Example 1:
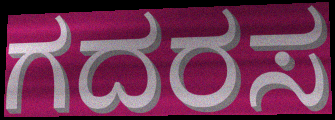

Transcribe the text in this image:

ಗದರಸ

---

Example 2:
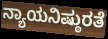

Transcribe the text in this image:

ನ್ಯಾಯನಿಷ್ಠುರತೆ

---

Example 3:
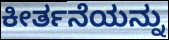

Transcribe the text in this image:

ಕೀರ್ತನೆಯನ್ನು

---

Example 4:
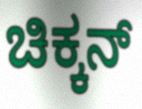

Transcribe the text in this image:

ಚಿಕ್ಕನ್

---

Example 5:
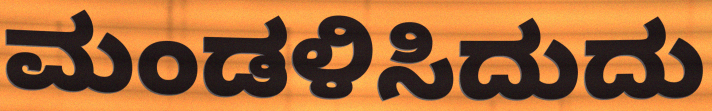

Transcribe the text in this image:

ಮಂಡಳಿಸಿದುದು